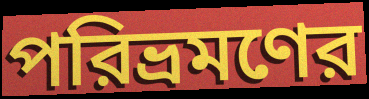
পরিভ্রমণের